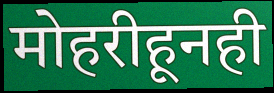
मोहरीहूनही